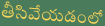
తీసివేయడంలో